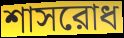
শাসরোধ